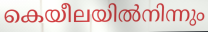
കെയീലയിൽനിന്നും